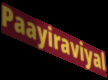
Paayiraviyal